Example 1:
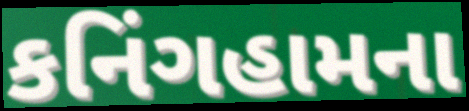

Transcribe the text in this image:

કનિંગહામના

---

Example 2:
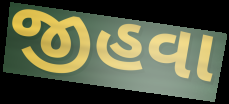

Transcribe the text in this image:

જીહવા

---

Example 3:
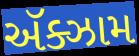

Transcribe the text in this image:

ઍક્ઝામ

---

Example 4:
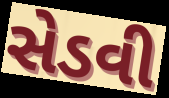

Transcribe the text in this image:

સેડવી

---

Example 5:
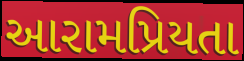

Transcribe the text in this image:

આરામપ્રિયતા